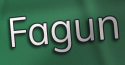
Fagun